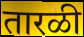
तारळी